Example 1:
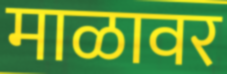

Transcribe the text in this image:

माळावर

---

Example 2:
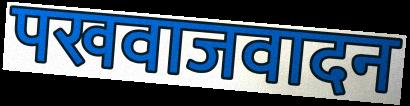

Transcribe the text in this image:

पखवाजवादन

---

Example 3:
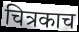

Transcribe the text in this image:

चित्रकाच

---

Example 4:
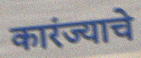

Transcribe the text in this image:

कारंज्याचे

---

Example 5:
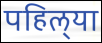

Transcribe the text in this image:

पहिल्या